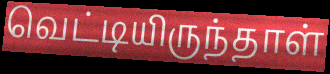
வெட்டியிருந்தாள்